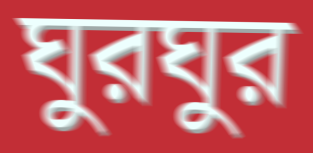
ঘুরঘুর